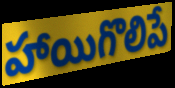
హాయిగొలిపే